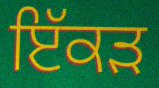
ਇੱਕੜ